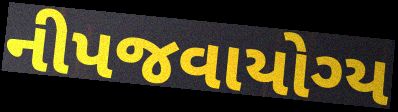
નીપજવાયોગ્ય